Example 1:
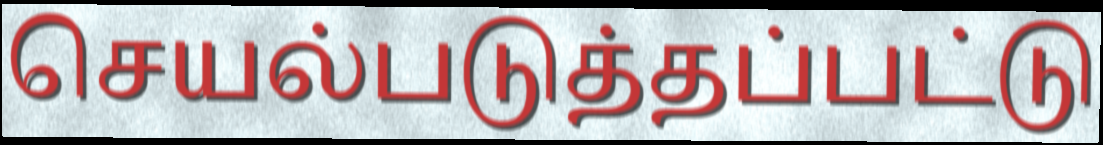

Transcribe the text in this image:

செயல்படுத்தப்பட்டு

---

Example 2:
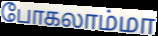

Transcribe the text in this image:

போகலாம்மா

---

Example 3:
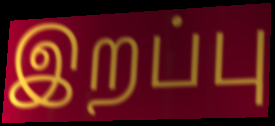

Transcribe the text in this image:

இறப்பு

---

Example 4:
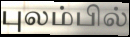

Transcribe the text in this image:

புலம்பில்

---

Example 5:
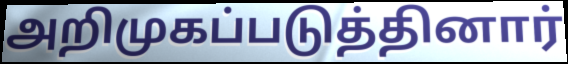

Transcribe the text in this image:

அறிமுகப்படுத்தினார்